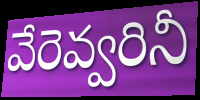
వేరెవ్వరినీ